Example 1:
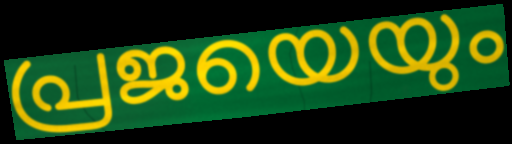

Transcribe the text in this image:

പ്രജയെയും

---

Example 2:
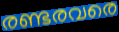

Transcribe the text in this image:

രണ്ടരവരെ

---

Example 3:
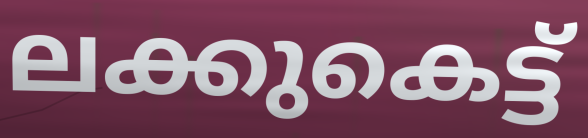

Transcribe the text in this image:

ലക്കുകെട്ട്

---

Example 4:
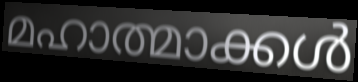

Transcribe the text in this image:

മഹാത്മാക്കൾ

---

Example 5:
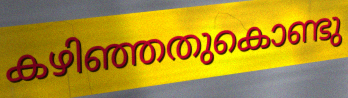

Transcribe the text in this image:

കഴിഞ്ഞതുകൊണ്ടു